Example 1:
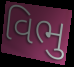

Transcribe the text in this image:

વિભુ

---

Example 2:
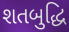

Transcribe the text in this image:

શતબુદ્ધિ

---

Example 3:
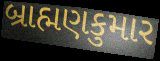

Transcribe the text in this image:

બ્રાહ્મણકુમાર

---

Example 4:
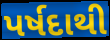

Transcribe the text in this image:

પર્ષદાથી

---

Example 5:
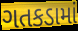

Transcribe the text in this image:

ગતકડામાં